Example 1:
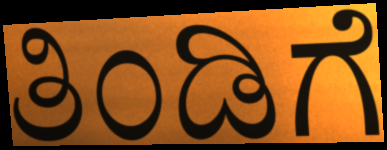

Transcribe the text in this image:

ತಿಂಡಿಗೆ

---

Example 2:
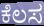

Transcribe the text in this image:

ಕೆಲಸ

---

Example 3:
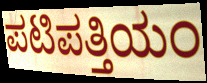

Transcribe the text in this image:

ಪಟಿಪತ್ತಿಯಂ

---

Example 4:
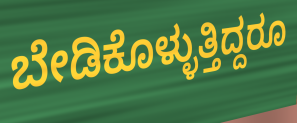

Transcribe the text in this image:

ಬೇಡಿಕೊಳ್ಳುತ್ತಿದ್ದರೂ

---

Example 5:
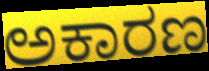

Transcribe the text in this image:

ಅಕಾರಣ